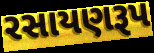
રસાયણરૂપ